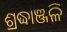
ଶ୍ରଦ୍ଧାଞ୍ଜଳି